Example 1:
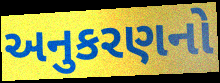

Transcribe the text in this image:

અનુકરણનો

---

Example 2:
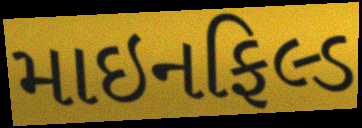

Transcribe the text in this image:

માઇનફિલ્ડ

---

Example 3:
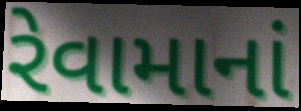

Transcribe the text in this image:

રેવામાનાં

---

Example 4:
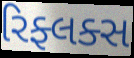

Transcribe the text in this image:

રિફ્લક્સ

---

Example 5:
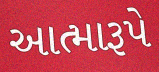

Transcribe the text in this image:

આત્મારૂપે